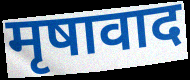
मृषावाद